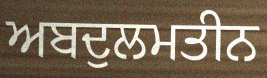
ਅਬਦੁਲਮਤੀਨ